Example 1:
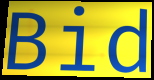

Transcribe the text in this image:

Bid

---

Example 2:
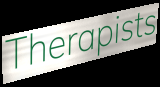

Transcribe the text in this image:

Therapists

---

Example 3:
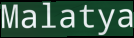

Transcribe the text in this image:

Malatya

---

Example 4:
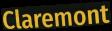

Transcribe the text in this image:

Claremont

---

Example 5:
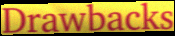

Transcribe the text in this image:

Drawbacks